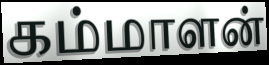
கம்மாளன்